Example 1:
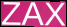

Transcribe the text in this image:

ZAX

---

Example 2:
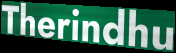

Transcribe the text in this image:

Therindhu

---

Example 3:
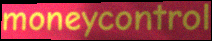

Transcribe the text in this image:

moneycontrol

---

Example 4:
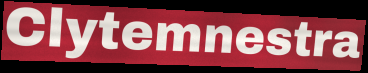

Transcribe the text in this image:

Clytemnestra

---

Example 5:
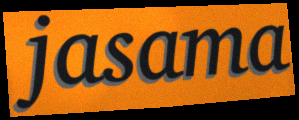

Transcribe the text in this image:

jasama